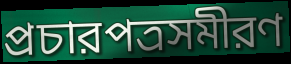
প্রচারপত্রসমীরণ